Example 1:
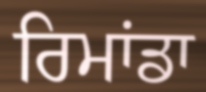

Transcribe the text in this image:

ਰਿਮਾਂਡਾ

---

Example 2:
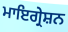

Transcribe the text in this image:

ਮਾਇਗ੍ਰੇਸ਼ਨ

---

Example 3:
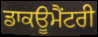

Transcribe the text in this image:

ਡਾਕਊਮੈਂਟਰੀ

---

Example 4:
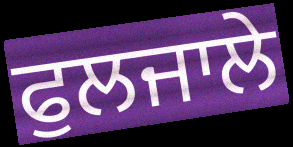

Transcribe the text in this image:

ਫੁਲਜਾਲੇ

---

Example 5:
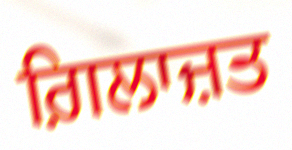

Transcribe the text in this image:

ਗ਼ਿਲਾਜ਼ਤ